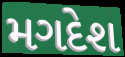
મગદેશ